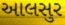
આલસુર